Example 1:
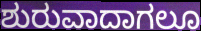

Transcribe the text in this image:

ಶುರುವಾದಾಗಲೂ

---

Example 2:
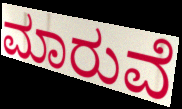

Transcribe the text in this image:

ಮಾರುವೆ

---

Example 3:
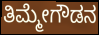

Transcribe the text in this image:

ತಿಮ್ಮೇಗೌಡನ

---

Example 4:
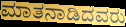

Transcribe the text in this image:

ಮಾತನಾಡಿದವರು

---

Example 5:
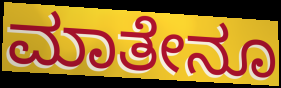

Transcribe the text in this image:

ಮಾತೇನೂ